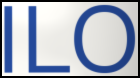
ILO